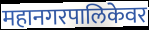
महानगरपालिकेवर